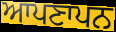
ਆਪਣਾਪਨ